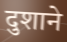
दुशाने